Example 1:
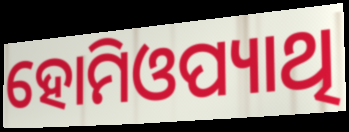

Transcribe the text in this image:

ହୋମିଓପ୍ୟାଥି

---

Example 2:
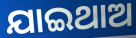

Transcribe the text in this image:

ଯାଇଥାଅ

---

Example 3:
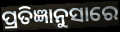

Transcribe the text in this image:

ପ୍ରତିଜ୍ଞାନୁସାରେ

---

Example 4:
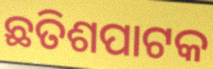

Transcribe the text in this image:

ଛତିଶପାଟକ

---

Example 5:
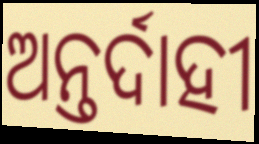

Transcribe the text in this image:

ଅନ୍ତର୍ଦାହୀ